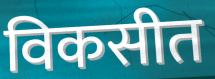
विकसीत